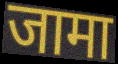
जामा